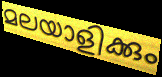
മലയാളിക്കും